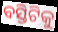
ବସ୍ତିଟିକୁ